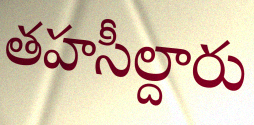
తహసీల్దారు